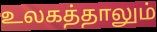
உலகத்தாலும்